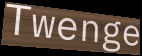
Twenge